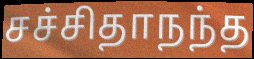
சச்சிதாநந்த